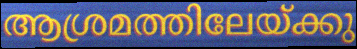
ആശ്രമത്തിലേയ്ക്കു